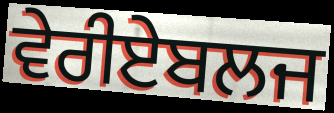
ਵੇਰੀਏਬਲਜ